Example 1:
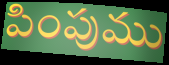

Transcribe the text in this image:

పింపుము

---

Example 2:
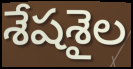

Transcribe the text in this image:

శేషశైల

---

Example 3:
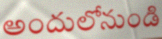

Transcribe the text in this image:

అందులోనుండి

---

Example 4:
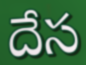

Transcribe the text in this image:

దేస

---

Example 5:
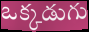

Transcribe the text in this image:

ఒక్కడుగు